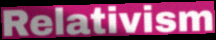
Relativism